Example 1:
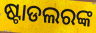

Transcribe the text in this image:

ଷ୍ଟାଡଲରଙ୍କ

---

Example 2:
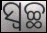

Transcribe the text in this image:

ସ୍ଵଚ୍ଛ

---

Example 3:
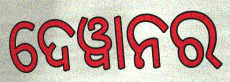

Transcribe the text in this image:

ଦେୱାନର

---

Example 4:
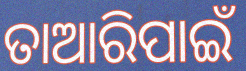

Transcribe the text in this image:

ତାଆରିପାଇଁ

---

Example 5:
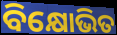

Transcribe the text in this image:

ବିକ୍ଷୋଭିତ